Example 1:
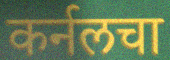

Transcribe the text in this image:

कर्नलचा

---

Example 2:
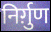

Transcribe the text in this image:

निर्ग़ुण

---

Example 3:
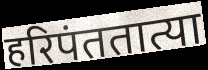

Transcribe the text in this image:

हरिपंततात्या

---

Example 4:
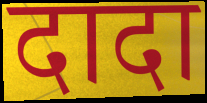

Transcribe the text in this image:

दादा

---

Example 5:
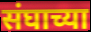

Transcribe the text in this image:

संघाच्या